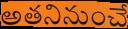
అతనినుంచే